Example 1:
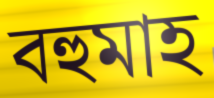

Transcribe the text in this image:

বহুমাহ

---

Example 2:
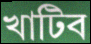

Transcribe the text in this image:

খাটিব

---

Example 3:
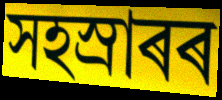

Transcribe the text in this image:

সহস্ৰাৰৰ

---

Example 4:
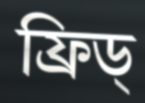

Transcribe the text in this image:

ফ্ৰিড্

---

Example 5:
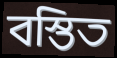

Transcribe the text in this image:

বস্তিত